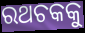
ରଥଚକକୁ